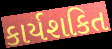
કાર્યશકિત